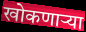
खोकणाऱ्या